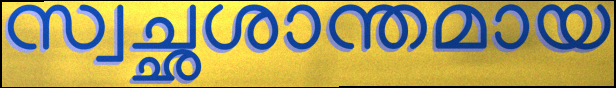
സ്വച്ഛശാന്തമായ